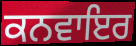
ਕਨਵਾਇਰ